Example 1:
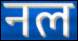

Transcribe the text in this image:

नल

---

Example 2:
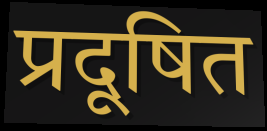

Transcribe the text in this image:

प्रदूषित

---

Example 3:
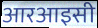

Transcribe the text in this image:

आरआइसी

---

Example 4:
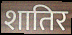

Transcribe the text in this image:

शातिर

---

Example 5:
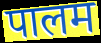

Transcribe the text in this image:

पालम